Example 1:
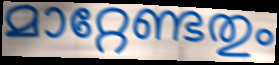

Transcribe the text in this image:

മാറ്റേണ്ടതും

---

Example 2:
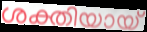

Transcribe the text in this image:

ശക്തിയായ്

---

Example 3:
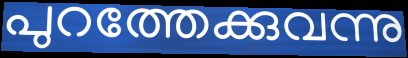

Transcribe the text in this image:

പുറത്തേക്കുവന്നു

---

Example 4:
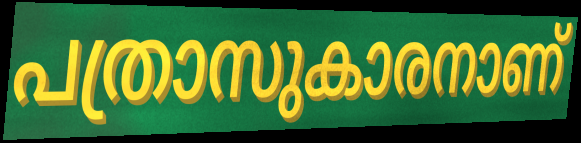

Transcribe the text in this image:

പത്രാസുകാരനാണ്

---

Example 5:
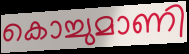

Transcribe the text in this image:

കൊച്ചുമാണി